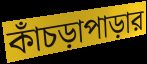
কাঁচড়াপাড়ার